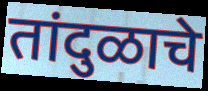
तांदुळाचे